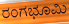
ರಂಗಭೂಮಿ